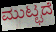
ಮುಟ್ಟದೆ